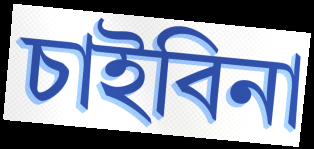
চাইবিনা